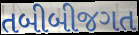
તબીબીજગત